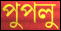
পুপলু